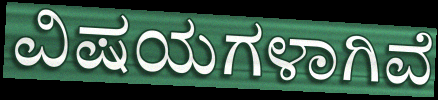
ವಿಷಯಗಳಾಗಿವೆ